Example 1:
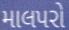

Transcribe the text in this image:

માલપરો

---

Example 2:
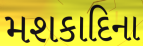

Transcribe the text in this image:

મશકાદિના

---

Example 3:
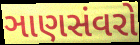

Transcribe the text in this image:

ઞાણસંવરો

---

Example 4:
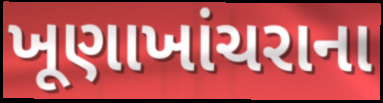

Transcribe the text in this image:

ખૂણાખાંચરાના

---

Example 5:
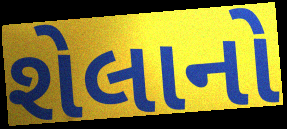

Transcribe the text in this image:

શેલાનો